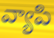
వ్యాపి